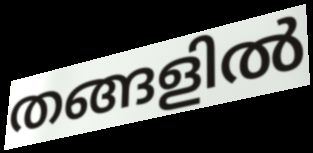
തങ്ങളിൽ